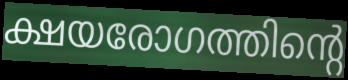
ക്ഷയരോഗത്തിന്റെ